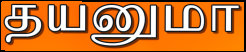
தயனுமா